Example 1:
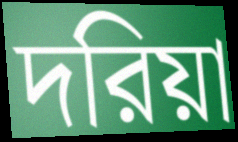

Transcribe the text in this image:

দরিয়া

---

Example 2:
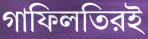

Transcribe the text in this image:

গাফিলতিরই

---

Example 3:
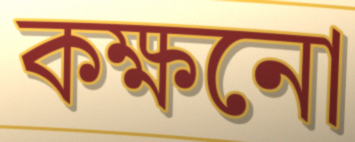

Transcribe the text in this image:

কক্ষনো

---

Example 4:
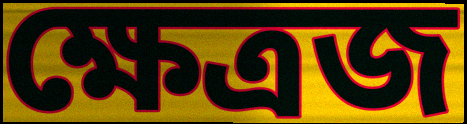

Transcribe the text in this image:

ক্ষেত্রজ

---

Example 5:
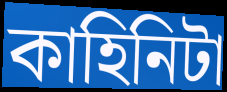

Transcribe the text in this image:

কাহিনিটা